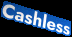
Cashless